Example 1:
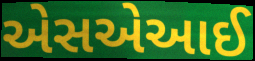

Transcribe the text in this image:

એસએઆઈ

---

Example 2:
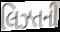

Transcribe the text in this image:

લિઝ્તની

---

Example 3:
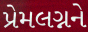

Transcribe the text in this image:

પ્રેમલગ્નને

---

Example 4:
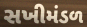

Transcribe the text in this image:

સખીમંડળ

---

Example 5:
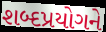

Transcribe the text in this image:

શબ્દપ્રયોગને